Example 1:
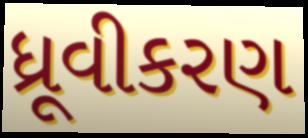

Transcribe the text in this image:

ધ્રૂવીકરણ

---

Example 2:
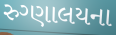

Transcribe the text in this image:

રુગ્ણાલયના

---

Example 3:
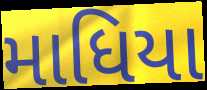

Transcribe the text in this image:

માધિયા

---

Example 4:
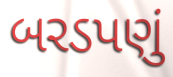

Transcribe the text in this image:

બરડપણું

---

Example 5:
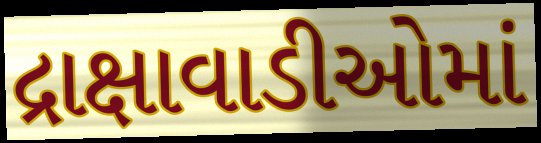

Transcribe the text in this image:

દ્રાક્ષાવાડીઓમાં